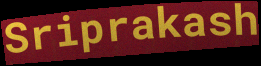
Sriprakash